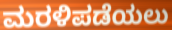
ಮರಳಿಪಡೆಯಲು